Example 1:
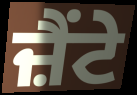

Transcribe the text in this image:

ਜ਼ੈਂਟੇ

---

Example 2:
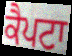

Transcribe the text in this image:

ਕੈਪਟਾ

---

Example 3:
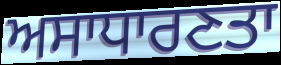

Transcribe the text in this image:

ਅਸਾਧਾਰਣਤਾ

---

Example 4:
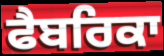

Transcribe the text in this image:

ਫੈਬਰਿਕਾ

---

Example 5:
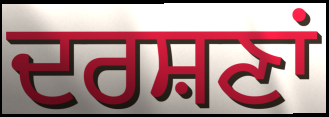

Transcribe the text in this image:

ਦਰਸ਼ਣਾਂ